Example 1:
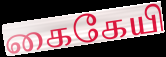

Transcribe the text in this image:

கைகேயி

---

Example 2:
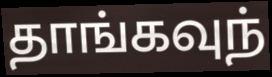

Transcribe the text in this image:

தாங்கவுந்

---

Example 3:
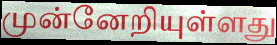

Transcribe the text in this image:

முன்னேறியுள்ளது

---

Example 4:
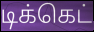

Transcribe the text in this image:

டிக்கெட்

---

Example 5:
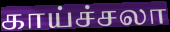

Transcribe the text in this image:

காய்ச்சலா